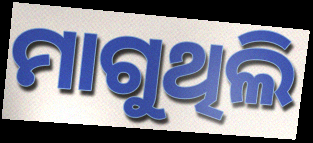
ମାଗୁଥିଲି